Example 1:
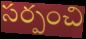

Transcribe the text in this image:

సర్పంచి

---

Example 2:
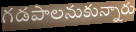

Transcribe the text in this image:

గడపాలనుకున్నారు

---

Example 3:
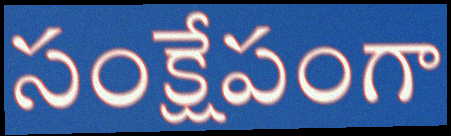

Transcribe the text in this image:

సంక్షేపంగా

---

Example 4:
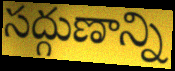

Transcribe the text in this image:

సద్గుణాన్ని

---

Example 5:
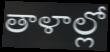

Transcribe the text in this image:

తాళాల్లో